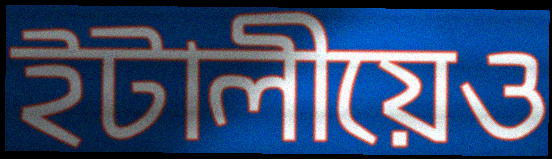
ইটালীয়েও